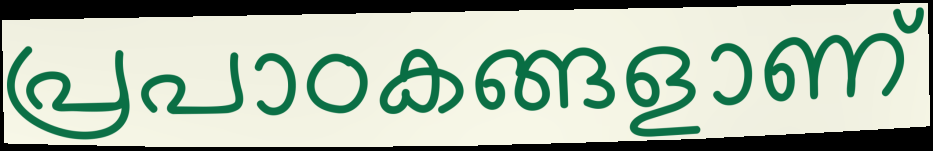
പ്രപാഠകങ്ങളാണ്